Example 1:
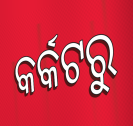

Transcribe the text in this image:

କର୍କଟରୁ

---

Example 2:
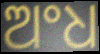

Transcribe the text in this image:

ଅଂଧ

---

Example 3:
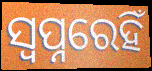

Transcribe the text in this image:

ସ୍ୱପ୍ନରେହିଁ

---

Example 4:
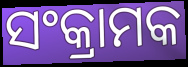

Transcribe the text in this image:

ସଂକ୍ରାମକ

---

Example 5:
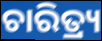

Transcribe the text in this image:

ଚାରିତ୍ର୍ୟ